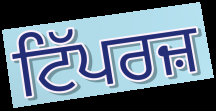
ਟਿੱਪਰਜ਼